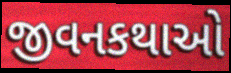
જીવનકથાઓ